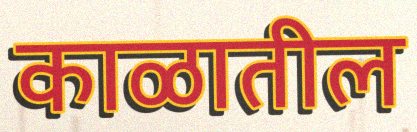
काळातील